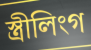
স্ত্ৰীলিংগ